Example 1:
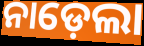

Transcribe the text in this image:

ନାଡ଼େଲା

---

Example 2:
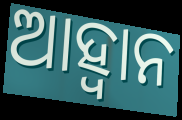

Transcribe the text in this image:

ଆହ୍ୱାନ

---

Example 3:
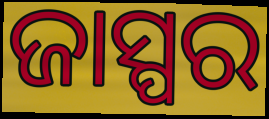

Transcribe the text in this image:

ଜାସ୍ପର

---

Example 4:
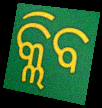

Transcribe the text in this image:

କ୍ଲିବ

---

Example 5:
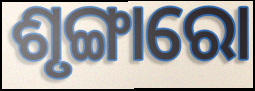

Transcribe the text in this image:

ଶୃଙ୍ଗାରୋ